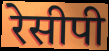
रेसीपी